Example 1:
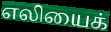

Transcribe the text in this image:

எலியைக்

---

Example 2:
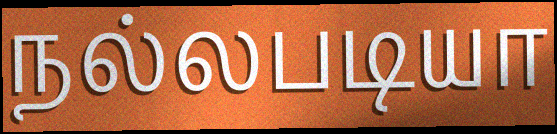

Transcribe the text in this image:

நல்லபடியா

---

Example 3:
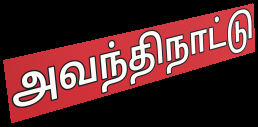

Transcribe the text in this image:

அவந்திநாட்டு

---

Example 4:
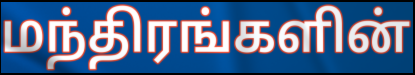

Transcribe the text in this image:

மந்திரங்களின்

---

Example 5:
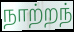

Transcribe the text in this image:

நாற்றந்